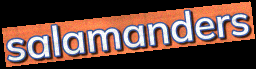
salamanders